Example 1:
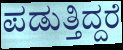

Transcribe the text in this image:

ಪಡುತ್ತಿದ್ದರೆ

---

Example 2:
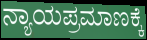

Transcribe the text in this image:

ನ್ಯಾಯಪ್ರಮಾಣಕ್ಕೆ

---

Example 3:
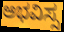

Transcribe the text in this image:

ಅಭವಿಸ್ಸ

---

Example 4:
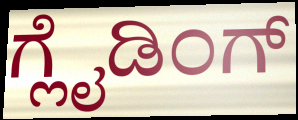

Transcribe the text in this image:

ಗ್ಲೈಡಿಂಗ್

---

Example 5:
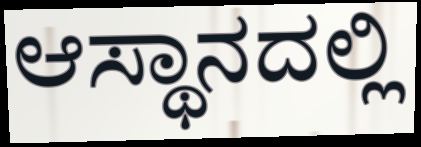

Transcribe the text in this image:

ಆಸ್ಥಾನದಲ್ಲಿ